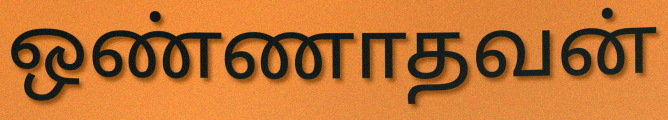
ஒண்ணாதவன்